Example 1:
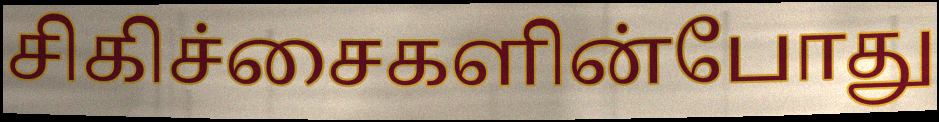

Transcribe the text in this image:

சிகிச்சைகளின்போது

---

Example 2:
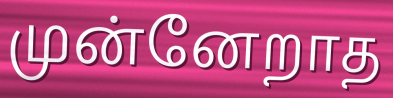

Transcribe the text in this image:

முன்னேறாத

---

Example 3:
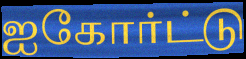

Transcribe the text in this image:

ஐகோர்ட்டு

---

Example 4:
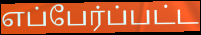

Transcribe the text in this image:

எப்பேர்ப்பட்ட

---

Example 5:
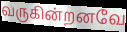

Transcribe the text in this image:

வருகின்றனவே